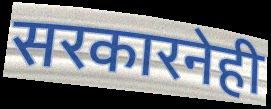
सरकारनेही